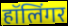
हॉलिंगर